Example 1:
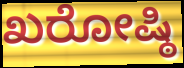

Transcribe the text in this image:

ಖರೋಷ್ಠಿ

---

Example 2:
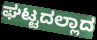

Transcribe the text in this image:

ಘಟ್ಟದಲ್ಲಾದ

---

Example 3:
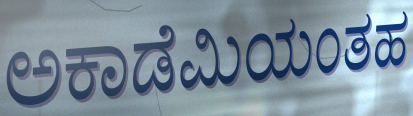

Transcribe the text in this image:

ಅಕಾಡೆಮಿಯಂತಹ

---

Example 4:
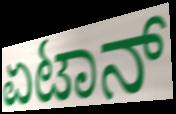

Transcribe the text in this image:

ಏಟಾನ್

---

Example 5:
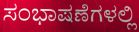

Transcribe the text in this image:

ಸಂಭಾಷಣೆಗಳಲ್ಲಿ